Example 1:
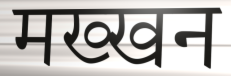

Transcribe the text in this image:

मख्खन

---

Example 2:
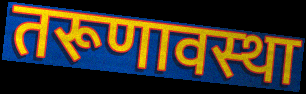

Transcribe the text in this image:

तरूणावस्था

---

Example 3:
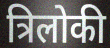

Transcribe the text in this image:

त्रिलोकी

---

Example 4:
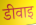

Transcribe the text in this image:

डीवाइ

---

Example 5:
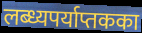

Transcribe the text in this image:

लब्ध्यपर्याप्तकका